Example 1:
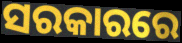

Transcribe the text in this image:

ସରକାରରେ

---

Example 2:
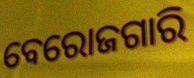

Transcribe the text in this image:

ବେରୋଜଗାରି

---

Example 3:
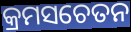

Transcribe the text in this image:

କ୍ରମସଚେତନ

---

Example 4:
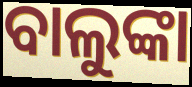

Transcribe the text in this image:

ବାଲୁଙ୍କା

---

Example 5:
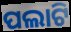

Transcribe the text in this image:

ପଲାଟି